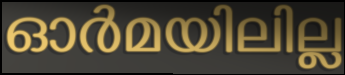
ഓർമയിലില്ല